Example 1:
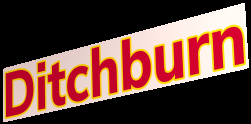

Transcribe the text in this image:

Ditchburn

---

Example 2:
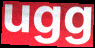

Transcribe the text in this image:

ugg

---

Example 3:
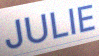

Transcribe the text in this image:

JULIE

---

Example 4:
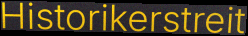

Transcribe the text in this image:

Historikerstreit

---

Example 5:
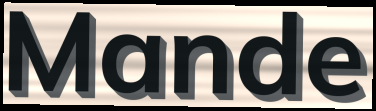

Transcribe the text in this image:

Mande